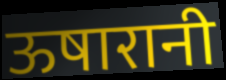
ऊषारानी